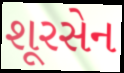
શૂરસેન